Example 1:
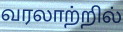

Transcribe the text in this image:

வரலாற்றில்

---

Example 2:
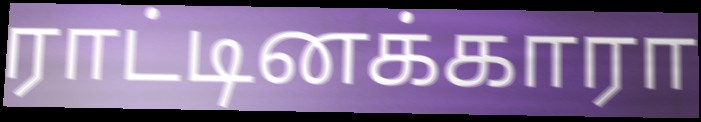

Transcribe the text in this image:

ராட்டினக்காரா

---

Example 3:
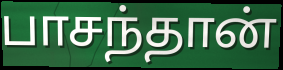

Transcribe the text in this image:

பாசந்தான்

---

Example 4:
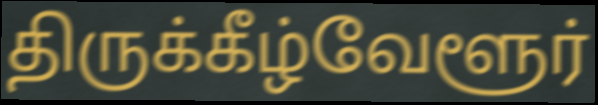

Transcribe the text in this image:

திருக்கீழ்வேளூர்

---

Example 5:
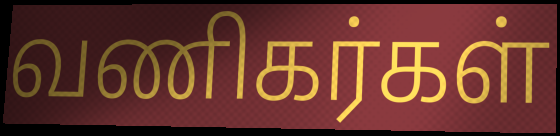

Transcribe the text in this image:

வணிகர்கள்